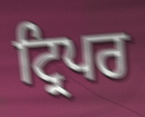
ਟ੍ਰਿਪਰ